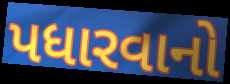
પધારવાનો